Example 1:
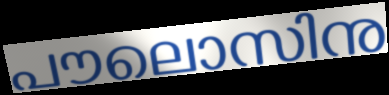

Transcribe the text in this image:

പൗലൊസിനു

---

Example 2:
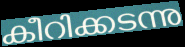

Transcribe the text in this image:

കീറിക്കടന്നു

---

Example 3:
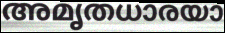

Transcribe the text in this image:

അമൃതധാരയാ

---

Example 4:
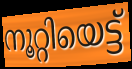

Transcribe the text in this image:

നൂറ്റിയെട്ട്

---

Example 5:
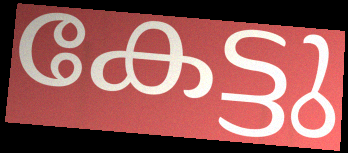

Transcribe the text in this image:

കേട്ടു